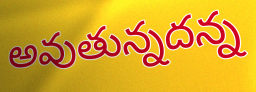
అవుతున్నదన్న